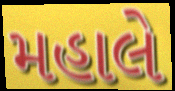
મહાલે